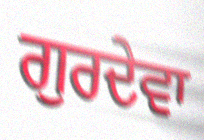
ਗੁਰਦੇਵਾ